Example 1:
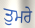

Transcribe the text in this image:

ਤੁਮਰੇ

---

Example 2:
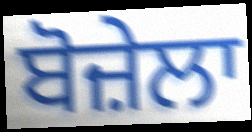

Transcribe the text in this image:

ਬੋਜ਼ੇਲਾ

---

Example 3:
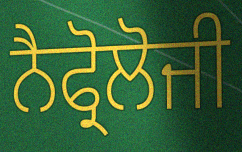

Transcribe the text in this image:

ਨੈਫ੍ਰੋਲੋਜੀ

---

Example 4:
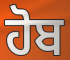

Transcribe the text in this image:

ਹੋਬ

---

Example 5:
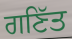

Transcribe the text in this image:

ਗਣਿੱਤ